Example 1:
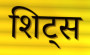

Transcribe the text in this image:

शिट्स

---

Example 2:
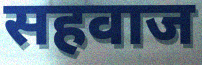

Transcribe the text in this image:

सहवाज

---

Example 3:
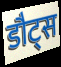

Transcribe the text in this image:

डौट्स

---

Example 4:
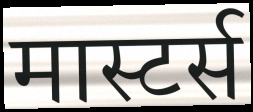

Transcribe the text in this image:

मास्टर्स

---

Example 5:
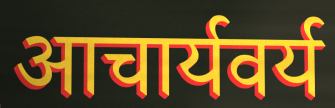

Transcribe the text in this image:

आचार्यवर्य